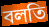
বলতি